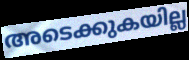
അടെക്കുകയില്ല